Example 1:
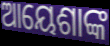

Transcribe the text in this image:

ଆୟେଶାଙ୍କ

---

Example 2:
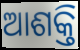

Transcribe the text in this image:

ଆଶକ୍ତି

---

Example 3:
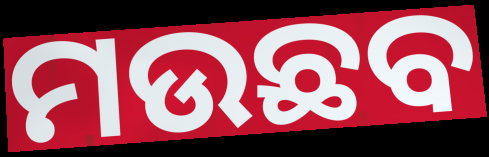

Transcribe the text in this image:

ମଉଛବ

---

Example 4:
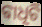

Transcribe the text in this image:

ବାଧିଚି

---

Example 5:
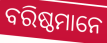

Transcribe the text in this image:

ବରିଷ୍ଠମାନେ